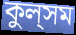
কুল্‌সম